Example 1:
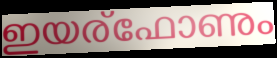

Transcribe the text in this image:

ഇയര്ഫോണും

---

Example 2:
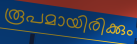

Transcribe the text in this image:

രൂപമായിരിക്കും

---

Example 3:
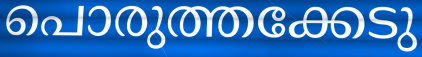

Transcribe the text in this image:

പൊരുത്തക്കേടു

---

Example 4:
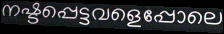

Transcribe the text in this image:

നഷ്ടപ്പെട്ടവളെപ്പോലെ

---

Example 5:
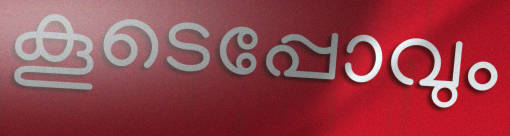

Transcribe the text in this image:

കൂടെപ്പോവും